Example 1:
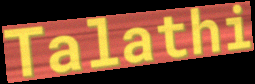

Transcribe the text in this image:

Talathi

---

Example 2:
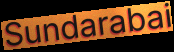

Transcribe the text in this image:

Sundarabai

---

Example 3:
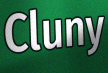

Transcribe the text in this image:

Cluny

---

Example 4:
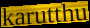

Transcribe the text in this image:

karutthu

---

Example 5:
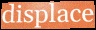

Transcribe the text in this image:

displace